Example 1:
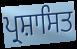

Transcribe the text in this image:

ਪ੍ਰਸ਼ਾਸਿਤ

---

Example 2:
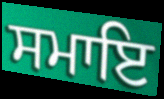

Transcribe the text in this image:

ਸਮਾਇ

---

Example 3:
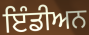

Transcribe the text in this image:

ਇੰਡੀਅਨ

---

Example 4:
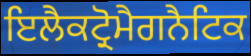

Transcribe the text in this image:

ਇਲੈਕਟ੍ਰੋਮੈਗਨੈਟਿਕ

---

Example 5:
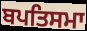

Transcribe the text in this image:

ਬਪਤਿਸਮਾ